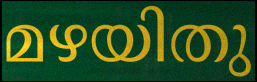
മഴയിതു